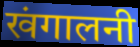
खंगालनी